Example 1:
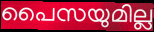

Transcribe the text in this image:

പൈസയുമില്ല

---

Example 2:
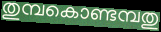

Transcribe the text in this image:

തുമ്പകൊണ്ടമ്പതു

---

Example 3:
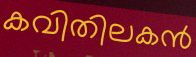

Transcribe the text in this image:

കവിതിലകൻ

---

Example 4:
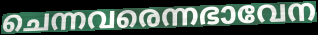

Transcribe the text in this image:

ചെന്നവരെന്നഭാവേന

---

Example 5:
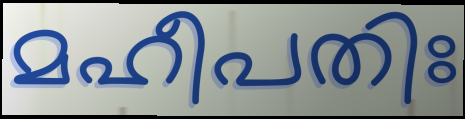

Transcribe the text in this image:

മഹീപതിഃ